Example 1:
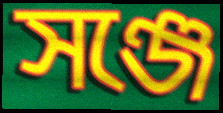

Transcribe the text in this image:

সঞ্জে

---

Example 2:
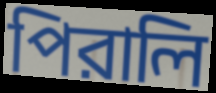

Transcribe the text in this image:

পিরালি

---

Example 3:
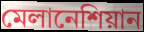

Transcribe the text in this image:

মেলানেশিয়ান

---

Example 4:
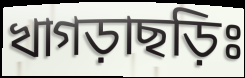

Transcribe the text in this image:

খাগড়াছড়িঃ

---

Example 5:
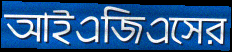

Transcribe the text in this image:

আইএজিএসের